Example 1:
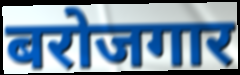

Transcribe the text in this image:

बरोजगार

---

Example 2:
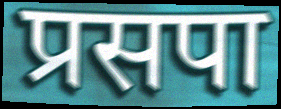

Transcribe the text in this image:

प्रसपा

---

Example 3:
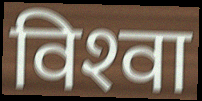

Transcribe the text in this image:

विश्‍वा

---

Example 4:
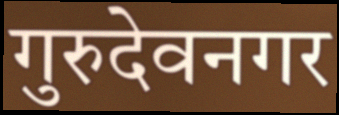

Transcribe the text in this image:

गुरुदेवनगर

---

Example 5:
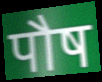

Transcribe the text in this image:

पौष